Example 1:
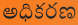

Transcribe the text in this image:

అధికరణ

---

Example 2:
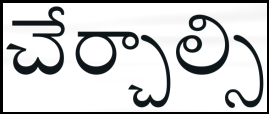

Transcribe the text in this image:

చేర్చాల్సి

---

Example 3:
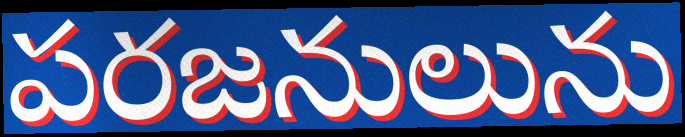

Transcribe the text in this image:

పరజనులును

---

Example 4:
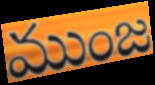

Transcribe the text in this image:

ముంజ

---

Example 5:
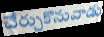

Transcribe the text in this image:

చేర్చుకొనువాడు